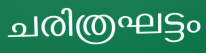
ചരിത്രഘട്ടം